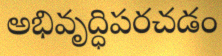
అభివృద్ధిపరచడం